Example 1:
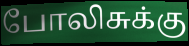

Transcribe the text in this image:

போலிசுக்கு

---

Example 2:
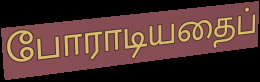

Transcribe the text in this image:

போராடியதைப்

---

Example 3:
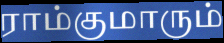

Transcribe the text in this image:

ராம்குமாரும்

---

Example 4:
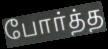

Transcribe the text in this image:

போர்த்த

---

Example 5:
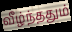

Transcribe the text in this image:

வீழ்ந்ததும்